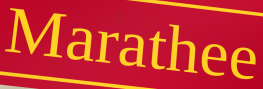
Marathee